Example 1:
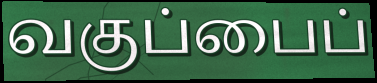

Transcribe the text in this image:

வகுப்பைப்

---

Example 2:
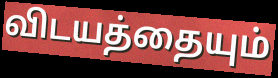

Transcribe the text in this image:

விடயத்தையும்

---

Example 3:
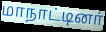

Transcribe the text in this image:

மாநாட்டினர்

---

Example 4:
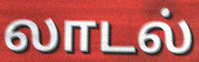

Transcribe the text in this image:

லாடல்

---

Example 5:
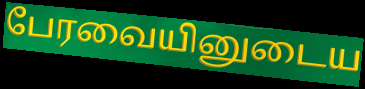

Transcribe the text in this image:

பேரவையினுடைய